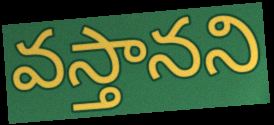
వస్తానని